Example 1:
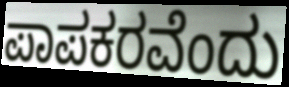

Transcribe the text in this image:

ಪಾಪಕರವೆಂದು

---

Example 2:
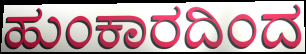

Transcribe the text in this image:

ಹುಂಕಾರದಿಂದ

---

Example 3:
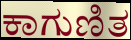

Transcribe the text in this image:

ಕಾಗುಣಿತ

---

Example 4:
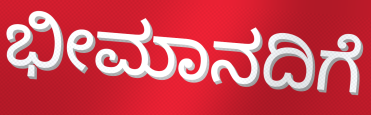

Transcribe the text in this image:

ಭೀಮಾನದಿಗೆ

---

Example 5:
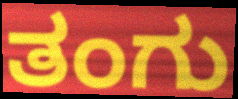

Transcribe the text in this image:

ತಂಗು